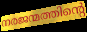
നരജന്മത്തിന്റെ